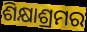
ଶିକ୍ଷାଶ୍ରମର